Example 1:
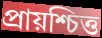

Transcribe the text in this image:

প্রায়শ্চিত্ত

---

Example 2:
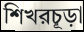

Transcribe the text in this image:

শিখরচূড়া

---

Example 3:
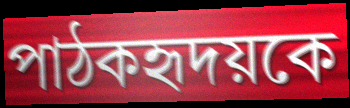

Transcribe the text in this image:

পাঠকহৃদয়কে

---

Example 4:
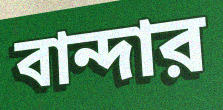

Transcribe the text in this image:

বান্দার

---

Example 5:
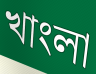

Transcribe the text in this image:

খাংলা